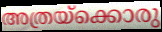
അത്രയ്ക്കൊരു